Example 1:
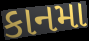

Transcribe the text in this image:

કાનમા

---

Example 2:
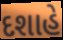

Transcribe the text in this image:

દશાહે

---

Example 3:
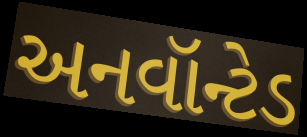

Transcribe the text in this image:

અનવૉન્ટેડ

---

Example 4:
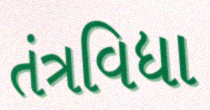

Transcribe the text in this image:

તંત્રવિદ્યા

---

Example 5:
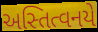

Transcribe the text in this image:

અસ્તિત્વનયે